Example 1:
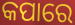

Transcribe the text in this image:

କପାରେ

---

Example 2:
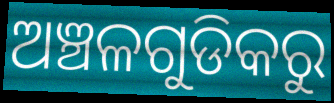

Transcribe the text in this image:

ଅଞ୍ଚଳଗୁଡିକରୁ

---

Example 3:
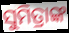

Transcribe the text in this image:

ସୁମିତ୍ରାଙ୍କ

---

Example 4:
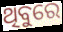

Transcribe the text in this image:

ଥିବୁରେ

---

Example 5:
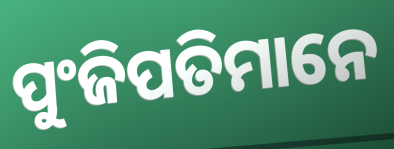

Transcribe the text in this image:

ପୁଂଜିପତିମାନେ